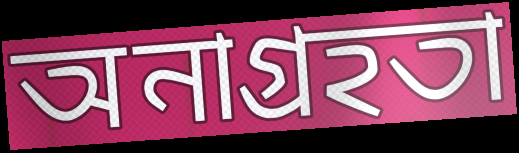
অনাগ্রহতা